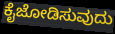
ಕೈಜೋಡಿಸುವುದು